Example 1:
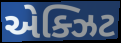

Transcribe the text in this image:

એક્ઝિટ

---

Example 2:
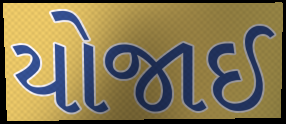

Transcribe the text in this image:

યોજાઈ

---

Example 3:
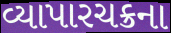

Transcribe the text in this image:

વ્યાપારચક્રના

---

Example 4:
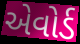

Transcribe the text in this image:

એવોર્ડ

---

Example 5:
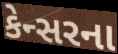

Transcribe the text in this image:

કેન્સરના